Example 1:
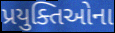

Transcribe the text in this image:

પ્રયુક્તિઓના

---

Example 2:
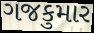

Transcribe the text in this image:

ગજકુમાર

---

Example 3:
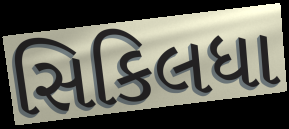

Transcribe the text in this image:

સિકિલધા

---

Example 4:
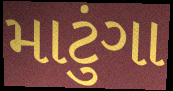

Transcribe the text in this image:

માટુંગા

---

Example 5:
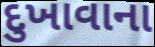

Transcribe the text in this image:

દુખાવાના